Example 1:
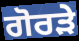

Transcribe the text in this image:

ਗੋਰੜੇ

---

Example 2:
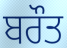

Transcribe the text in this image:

ਬਰੌਤ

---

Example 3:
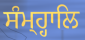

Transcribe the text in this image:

ਸੰਮ੍ਹ੍ਹਾਲਿ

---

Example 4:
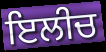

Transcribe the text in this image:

ਇਲੀਚ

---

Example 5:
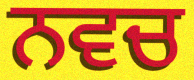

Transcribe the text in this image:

ਨਵਚ